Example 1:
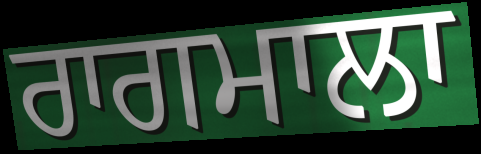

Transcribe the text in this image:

ਰਾਗਮਾਲਾ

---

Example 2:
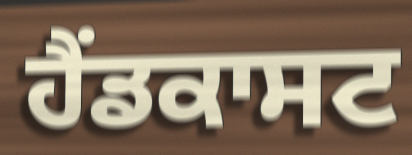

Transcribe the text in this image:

ਹੈਂਡਕਾਸਟ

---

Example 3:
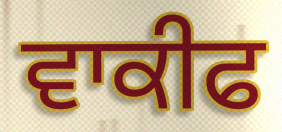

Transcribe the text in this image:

ਵਾਕੀਫ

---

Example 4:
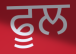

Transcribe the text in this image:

ਫੂਲ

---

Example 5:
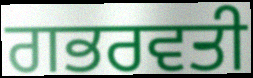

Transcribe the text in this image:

ਗਭਰਵਤੀ